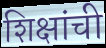
शिक्षांची